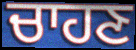
ਚਾਹਣ